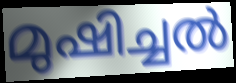
മുഷിച്ചൽ